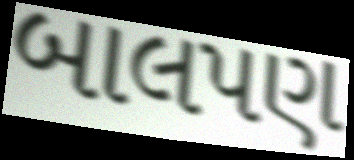
બાલપણ